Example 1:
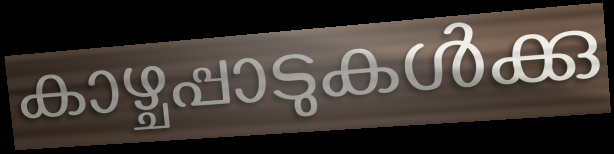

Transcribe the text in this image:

കാഴ്ചപ്പാടുകൾക്കു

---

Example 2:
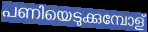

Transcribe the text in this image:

പണിയെടുക്കുമ്പോള്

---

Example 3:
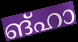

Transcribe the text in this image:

ങ്ഹാ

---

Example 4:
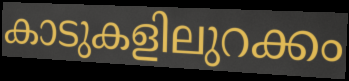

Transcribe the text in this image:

കാടുകളിലുറക്കം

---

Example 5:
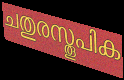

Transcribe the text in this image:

ചതുരസ്തൂപിക